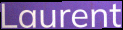
Laurent